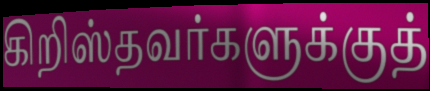
கிறிஸ்தவர்களுக்குத்